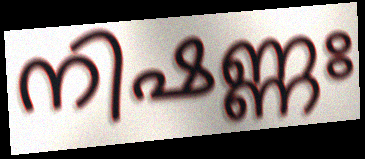
നിഷണ്ണഃ